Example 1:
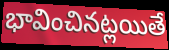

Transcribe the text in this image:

భావించినట్లయితే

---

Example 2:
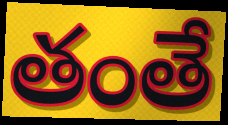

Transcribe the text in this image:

తంతే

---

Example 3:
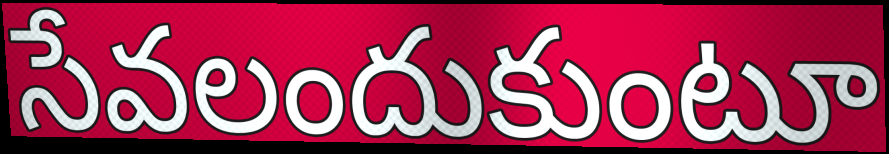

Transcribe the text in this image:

సేవలందుకుంటూ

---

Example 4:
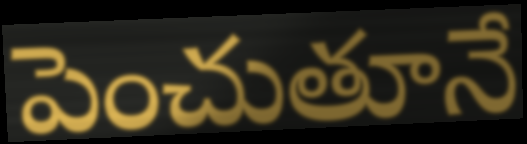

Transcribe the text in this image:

పెంచుతూనే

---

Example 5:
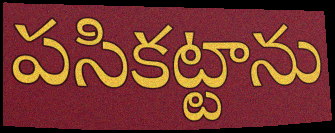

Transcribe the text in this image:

పసికట్టాను